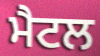
ਮੈਟਲ